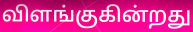
விளங்குகின்றது